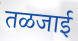
तळजाई